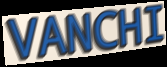
VANCHI